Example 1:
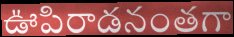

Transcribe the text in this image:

ఊపిరాడనంతగా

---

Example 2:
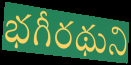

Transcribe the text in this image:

భగీరథుని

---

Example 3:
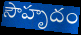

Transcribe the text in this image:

సౌహృదం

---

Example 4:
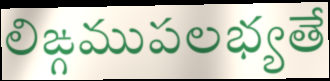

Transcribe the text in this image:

లిఙ్గముపలభ్యతే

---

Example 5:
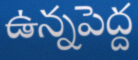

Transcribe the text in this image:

ఉన్నపెద్ద